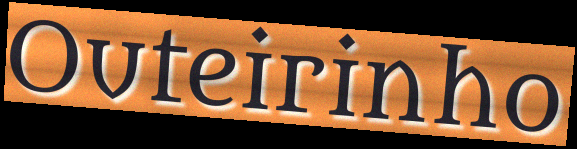
Outeirinho